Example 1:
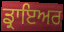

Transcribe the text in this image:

ਡ੍ਰਾਇਅਰ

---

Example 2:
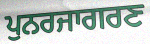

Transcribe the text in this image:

ਪੁਨਰਜਾਗਰਣ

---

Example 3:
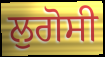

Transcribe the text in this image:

ਲੁਗੋਸੀ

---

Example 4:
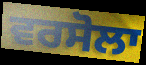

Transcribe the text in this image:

ਵਰਸੋਲਾ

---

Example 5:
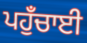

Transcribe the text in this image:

ਪਹੁਁਚਾਈ